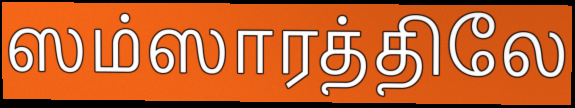
ஸம்ஸாரத்திலே